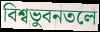
বিশ্বভুবনতলে